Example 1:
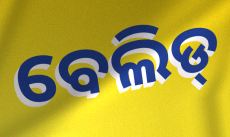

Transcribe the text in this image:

ବେଲିଡ୍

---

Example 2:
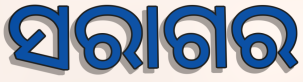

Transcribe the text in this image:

ସରାଗର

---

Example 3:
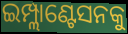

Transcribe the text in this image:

ଇମ୍ପ୍ଲାଣ୍ଟେସନକୁ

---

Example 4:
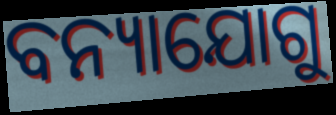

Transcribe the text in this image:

ବନ୍ୟାଯୋଗୁ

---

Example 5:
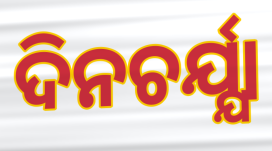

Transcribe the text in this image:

ଦିନଚର୍ଯ୍ଯା